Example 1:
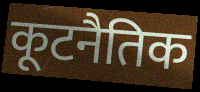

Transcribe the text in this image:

कूटनैतिक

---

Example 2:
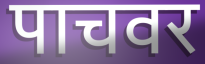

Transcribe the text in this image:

पाचवर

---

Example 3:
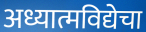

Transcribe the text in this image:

अध्यात्मविद्येचा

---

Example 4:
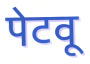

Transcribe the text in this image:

पेटवू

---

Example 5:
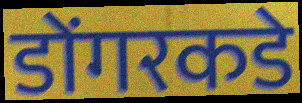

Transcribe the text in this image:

डोंगरकडे